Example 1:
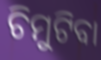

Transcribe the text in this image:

ଚିମୁଟିବା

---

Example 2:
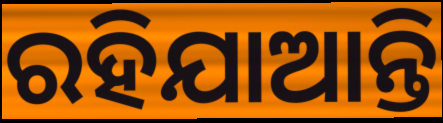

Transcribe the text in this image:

ରହିଯାଆନ୍ତି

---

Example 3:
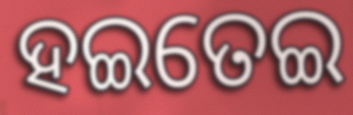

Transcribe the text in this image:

ହଇତେଇ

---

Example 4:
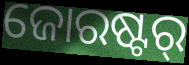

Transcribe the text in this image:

ଜୋରଷ୍ଟର୍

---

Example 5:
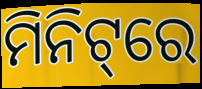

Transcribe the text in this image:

ମିନିଟ୍‌ରେ